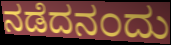
ನಡೆದನಂದು